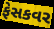
ફેસકવર